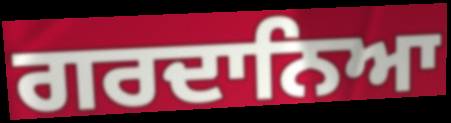
ਗਰਦਾਨਿਆ